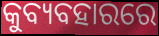
କୁବ୍ୟବହାରରେ